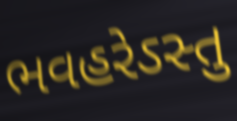
ભવહરેઽસ્તુ